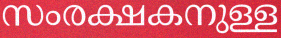
സംരക്ഷകനുള്ള